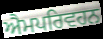
ਐਮਪਰਿਵਹਨ